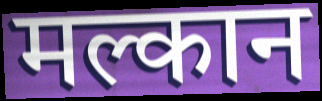
मल्कान